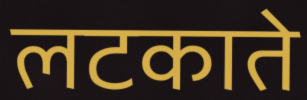
लटकाते